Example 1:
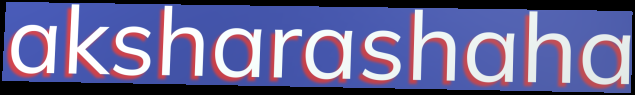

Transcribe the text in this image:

aksharashaha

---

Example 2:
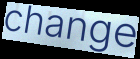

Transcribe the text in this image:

change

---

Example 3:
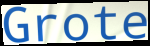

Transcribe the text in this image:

Grote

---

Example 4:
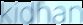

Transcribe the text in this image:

kidhan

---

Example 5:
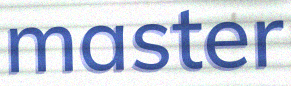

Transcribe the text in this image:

master